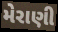
મેરાણી